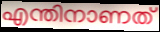
എന്തിനാണത്